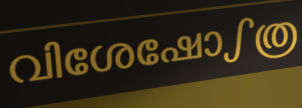
വിശേഷോഽത്ര